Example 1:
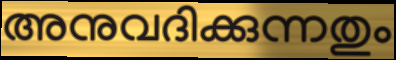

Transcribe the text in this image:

അനുവദിക്കുന്നതും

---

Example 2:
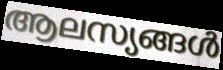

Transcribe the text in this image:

ആലസ്യങ്ങൾ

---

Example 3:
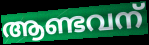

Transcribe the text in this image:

ആണ്ടവന്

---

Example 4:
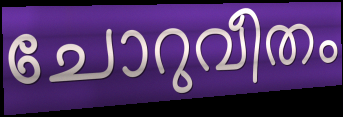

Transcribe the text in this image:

ചോറുവീതം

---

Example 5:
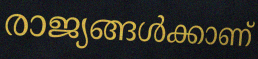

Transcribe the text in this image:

രാജ്യങ്ങൾക്കാണ്